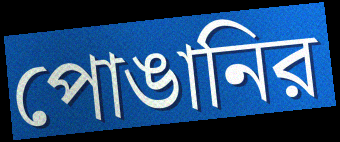
পোঙানির